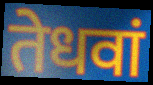
तेधवां